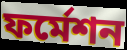
ফর্মেশন